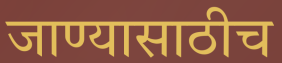
जाण्यासाठीच